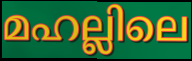
മഹല്ലിലെ